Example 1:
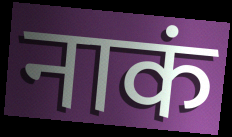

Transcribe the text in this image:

नाकं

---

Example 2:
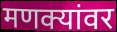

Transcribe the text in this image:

मणक्यांवर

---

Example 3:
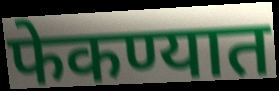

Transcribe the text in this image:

फेकण्यात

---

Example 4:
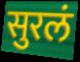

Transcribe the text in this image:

सुरलं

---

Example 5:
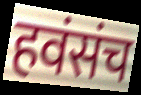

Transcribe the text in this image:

हवंसंच